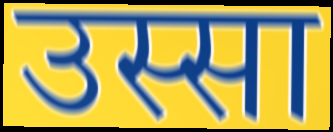
उस्सा